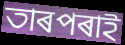
তাৰপৰাই